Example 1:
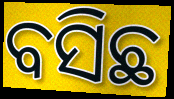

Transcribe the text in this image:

ବସିଛ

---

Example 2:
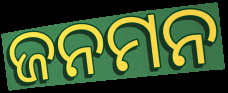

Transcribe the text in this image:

ଜନମନ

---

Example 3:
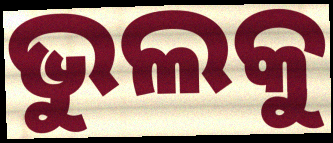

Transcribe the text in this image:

ଭୁଲକୁ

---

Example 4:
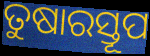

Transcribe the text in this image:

ତୁଷାରସ୍ତୂପ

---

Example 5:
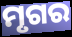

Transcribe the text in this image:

ମୃଗର